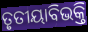
ତୃତୀୟାବିଭକ୍ତି